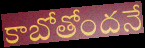
కాబోతోందనే